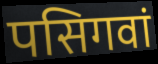
पसिगवां